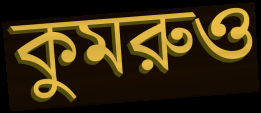
কুমরুও